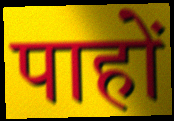
पाहों